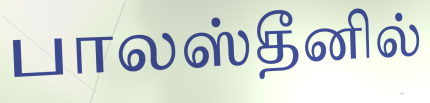
பாலஸ்தீனில்